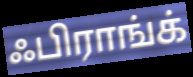
ஃபிராங்க்